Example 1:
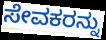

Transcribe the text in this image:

ಸೇವಕರನ್ನು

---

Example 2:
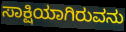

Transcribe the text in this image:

ಸಾಕ್ಷಿಯಾಗಿರುವನು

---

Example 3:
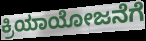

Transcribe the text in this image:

ಕ್ರಿಯಾಯೋಜನೆಗೆ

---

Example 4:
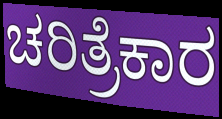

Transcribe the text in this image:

ಚರಿತ್ರೆಕಾರ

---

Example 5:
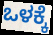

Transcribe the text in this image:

ಒಳಕ್ಕೆ